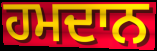
ਹਮਦਾਨ